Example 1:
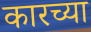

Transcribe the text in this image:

कारच्या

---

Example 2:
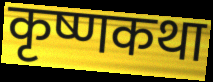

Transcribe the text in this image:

कृष्णकथा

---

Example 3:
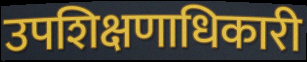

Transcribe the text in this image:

उपशिक्षणाधिकारी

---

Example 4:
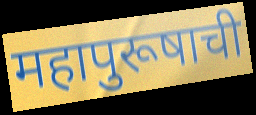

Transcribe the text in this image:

महापुरूषाची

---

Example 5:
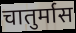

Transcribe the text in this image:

चातुर्मास